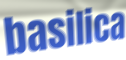
basilica